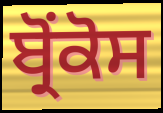
ਬ੍ਰੋਂਕੋਸ